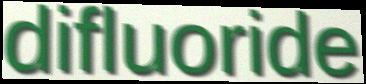
difluoride